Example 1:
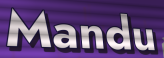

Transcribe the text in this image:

Mandu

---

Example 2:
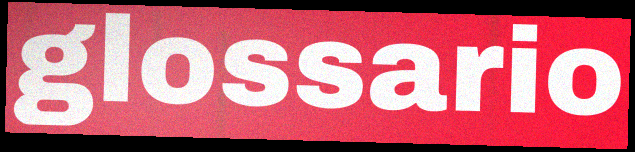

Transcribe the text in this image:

glossario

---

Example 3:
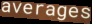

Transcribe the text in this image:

averages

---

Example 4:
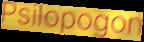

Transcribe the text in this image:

Psilopogon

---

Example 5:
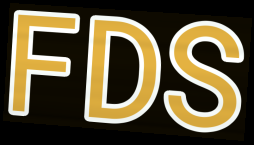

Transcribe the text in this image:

FDS